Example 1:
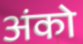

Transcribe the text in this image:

अंको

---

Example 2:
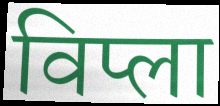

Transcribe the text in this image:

विप्ला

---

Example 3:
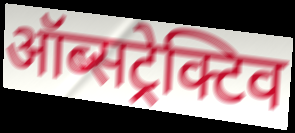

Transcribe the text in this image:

ऑब्सट्रेक्टिव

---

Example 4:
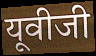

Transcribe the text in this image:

यूवीजी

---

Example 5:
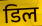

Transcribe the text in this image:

डिल